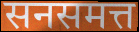
सनसमत्त